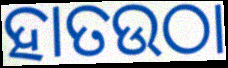
ହାତଉଠା